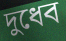
দুধেব